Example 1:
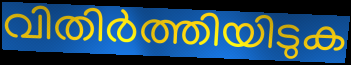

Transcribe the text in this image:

വിതിർത്തിയിടുക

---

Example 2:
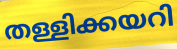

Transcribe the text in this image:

തള്ളിക്കയറി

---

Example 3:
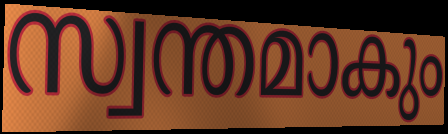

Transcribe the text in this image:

സ്വന്തമാകും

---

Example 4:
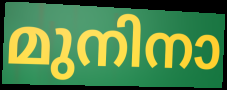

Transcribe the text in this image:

മുനിനാ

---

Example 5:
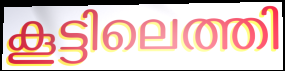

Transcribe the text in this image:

കൂട്ടിലെത്തി